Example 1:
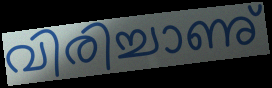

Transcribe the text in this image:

വിരിച്ചാണു്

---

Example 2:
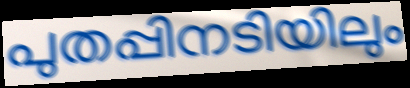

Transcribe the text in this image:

പുതപ്പിനടിയിലും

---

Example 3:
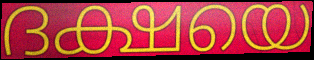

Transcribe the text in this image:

ദക്ഷയെ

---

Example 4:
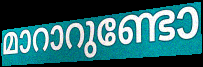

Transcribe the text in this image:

മാറാറുണ്ടോ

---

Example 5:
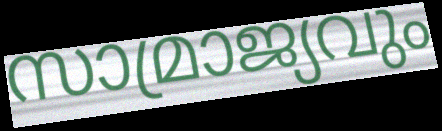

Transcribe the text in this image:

സാമ്രാജ്യവും